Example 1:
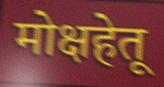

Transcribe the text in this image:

मोक्षहेतू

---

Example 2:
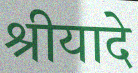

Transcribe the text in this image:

श्रीयादे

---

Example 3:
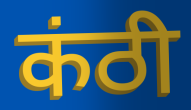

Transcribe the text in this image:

कंठी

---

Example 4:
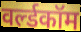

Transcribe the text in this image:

वर्ल्डकॉम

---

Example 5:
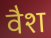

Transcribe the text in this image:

वैश